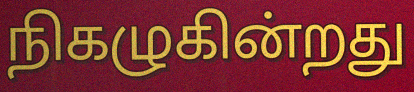
நிகழுகின்றது